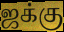
ஜக்கு